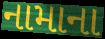
નામાના